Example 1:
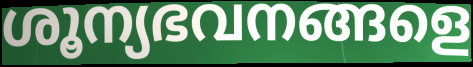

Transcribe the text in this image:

ശൂന്യഭവനങ്ങളെ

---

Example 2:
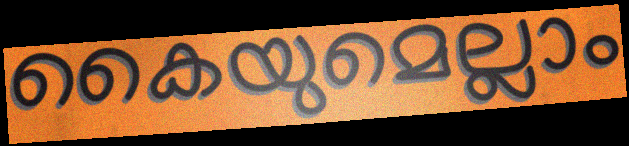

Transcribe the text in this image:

കൈയുമെല്ലാം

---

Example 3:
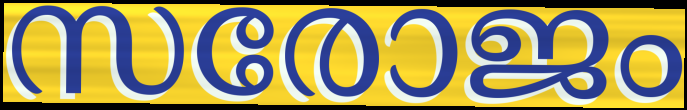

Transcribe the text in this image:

സരോജം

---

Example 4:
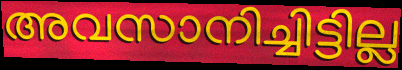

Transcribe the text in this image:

അവസാനിച്ചിട്ടില്ല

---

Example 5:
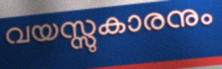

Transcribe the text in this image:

വയസ്സുകാരനും